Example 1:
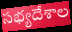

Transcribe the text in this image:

సభ్యదేశాల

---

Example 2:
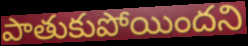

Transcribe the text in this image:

పాతుకుపోయిందని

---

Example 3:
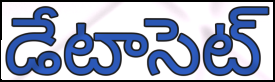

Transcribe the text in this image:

డేటాసెట్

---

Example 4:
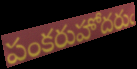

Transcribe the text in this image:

పంకరుహోదరుఁ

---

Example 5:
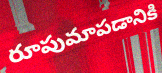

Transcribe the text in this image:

రూపుమాపడానికి